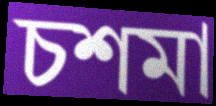
চশমা